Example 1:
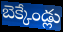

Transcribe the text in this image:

బెక్కేండ్లు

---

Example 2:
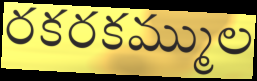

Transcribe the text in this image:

రకరకమ్ముల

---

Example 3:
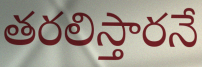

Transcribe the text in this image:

తరలిస్తారనే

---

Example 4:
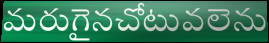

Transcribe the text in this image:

మరుగైనచోటువలెను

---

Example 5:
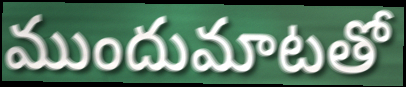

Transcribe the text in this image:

ముందుమాటతో